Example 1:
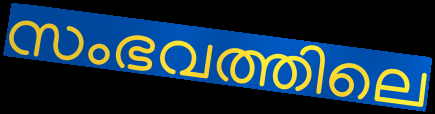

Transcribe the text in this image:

സംഭവത്തിലെ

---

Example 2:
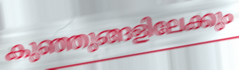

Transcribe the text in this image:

കുഞ്ഞുങ്ങളിലേക്കും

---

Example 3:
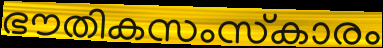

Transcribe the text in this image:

ഭൗതികസംസ്‌കാരം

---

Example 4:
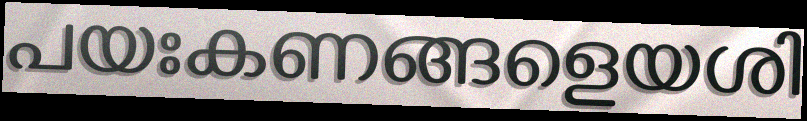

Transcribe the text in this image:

പയഃകണങ്ങളെയശി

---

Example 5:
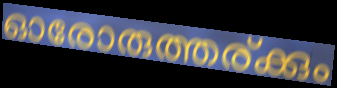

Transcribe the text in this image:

ഓരോരുത്തര്ക്കും